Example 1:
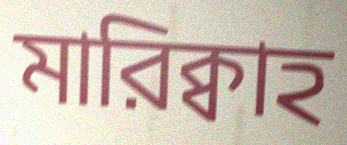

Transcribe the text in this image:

মারিক্বাহ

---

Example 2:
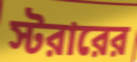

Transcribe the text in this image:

স্টরারের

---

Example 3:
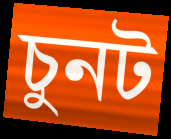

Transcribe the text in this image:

চুনট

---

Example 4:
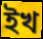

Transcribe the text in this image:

ইখ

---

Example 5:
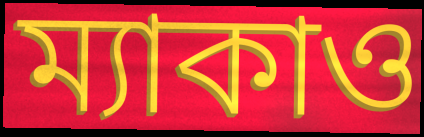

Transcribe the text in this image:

ম্যাকাও